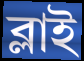
ব্লাই